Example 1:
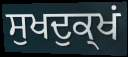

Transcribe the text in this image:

ਸੁਖਦੁਕ੍ਖਂ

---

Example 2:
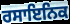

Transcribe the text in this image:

ਰਸਾਇਨਿਕ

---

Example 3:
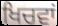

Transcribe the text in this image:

ਖਿਚਵਾਂ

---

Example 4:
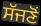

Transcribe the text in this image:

ਸੱਜਣੋਂ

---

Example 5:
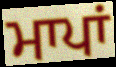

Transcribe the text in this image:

ਮਾਪਾਂ